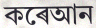
কৰেআন